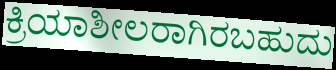
ಕ್ರಿಯಾಶೀಲರಾಗಿರಬಹುದು